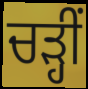
ਚੜ੍ਹੀਂ